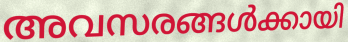
അവസരങ്ങൾക്കായി